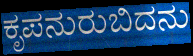
ಕೃಪನುರುಬಿದನು